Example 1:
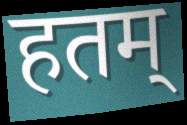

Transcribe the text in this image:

हतम्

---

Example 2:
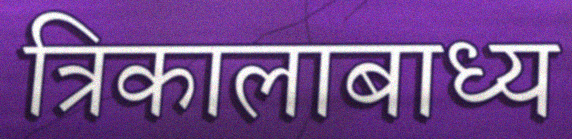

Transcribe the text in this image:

त्रिकालाबाध्य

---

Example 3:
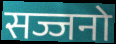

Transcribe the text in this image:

सज्जनो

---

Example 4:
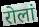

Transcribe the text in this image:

रोलां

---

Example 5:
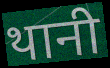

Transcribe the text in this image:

थानी